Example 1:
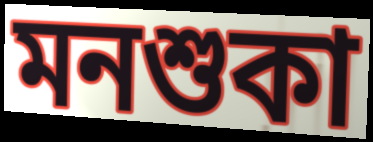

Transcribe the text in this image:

মনশুকা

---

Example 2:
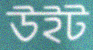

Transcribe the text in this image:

উইট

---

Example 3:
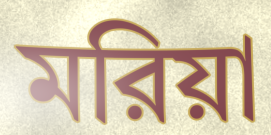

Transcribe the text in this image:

মরিয়া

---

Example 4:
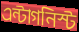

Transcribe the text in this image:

এন্টাগনিস্ট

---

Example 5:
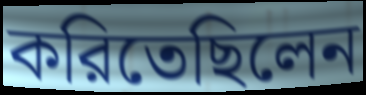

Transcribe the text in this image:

করিতেছিলেন